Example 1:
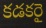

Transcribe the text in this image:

కడకరై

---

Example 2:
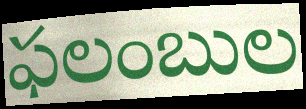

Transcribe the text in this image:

ఫలంబుల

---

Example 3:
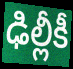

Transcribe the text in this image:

ఢిల్లీకీ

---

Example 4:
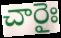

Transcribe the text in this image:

చారైః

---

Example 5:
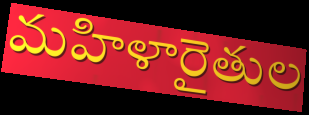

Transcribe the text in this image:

మహిళారైతుల